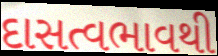
દાસત્વભાવથી